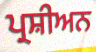
ਪ੍ਰਸ਼ੀਅਨ